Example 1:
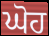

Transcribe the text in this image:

ਘੋਹ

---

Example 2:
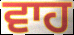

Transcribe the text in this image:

ਵਾਹ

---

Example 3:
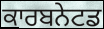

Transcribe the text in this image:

ਕਾਰਬਨੇਟਡ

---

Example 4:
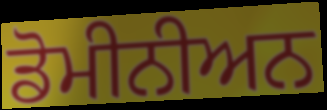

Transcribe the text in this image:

ਡੋਮੀਨੀਅਨ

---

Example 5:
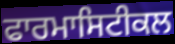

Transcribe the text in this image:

ਫਾਰਮਾਸਿਟੀਕਲ